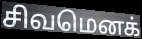
சிவமெனக்